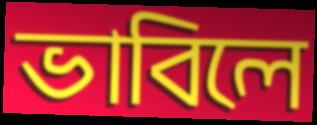
ভাবিলে